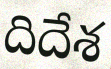
దిదేశ